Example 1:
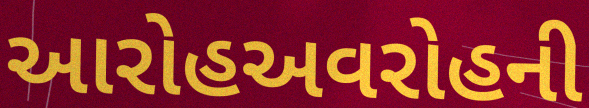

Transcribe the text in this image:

આરોહઅવરોહની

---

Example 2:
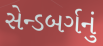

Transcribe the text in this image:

સેન્ડબર્ગનું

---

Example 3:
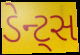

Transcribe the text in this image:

ડેન્ટ્સ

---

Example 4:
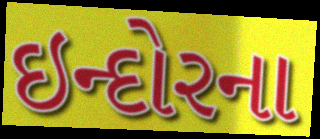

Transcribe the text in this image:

ઇન્દોરના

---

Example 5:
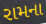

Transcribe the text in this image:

રામના